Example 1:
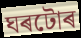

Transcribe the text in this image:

ঘৰটোৰ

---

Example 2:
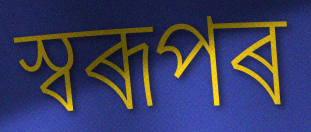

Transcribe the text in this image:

স্বৰূপৰ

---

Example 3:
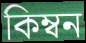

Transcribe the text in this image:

কিম্বন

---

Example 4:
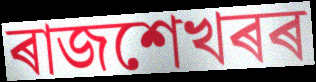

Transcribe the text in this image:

ৰাজশেখৰৰ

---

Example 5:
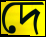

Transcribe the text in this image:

দে